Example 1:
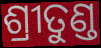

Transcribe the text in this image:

ଶ୍ରୀତୁଣ୍ଡ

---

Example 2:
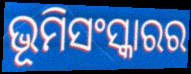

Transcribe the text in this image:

ଭୂମିସଂସ୍କାରର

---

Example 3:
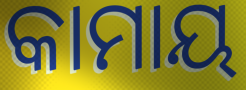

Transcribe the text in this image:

କାମାୟ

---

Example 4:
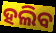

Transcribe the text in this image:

ହଲିବ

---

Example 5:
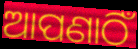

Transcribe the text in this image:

ଆପଣାଠିଁ